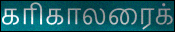
கரிகாலரைக்